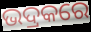
ଭଦ୍ରକରେ